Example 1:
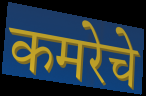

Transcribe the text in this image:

कमरेचे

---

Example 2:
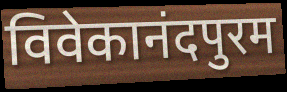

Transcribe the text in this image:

विवेकानंदपुरम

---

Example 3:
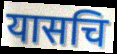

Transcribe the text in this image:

यासचि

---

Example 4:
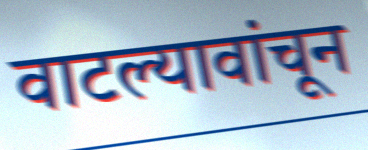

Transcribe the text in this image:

वाटल्यावांचून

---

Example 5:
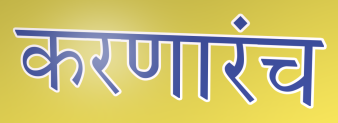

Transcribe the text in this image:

करणारंच